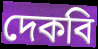
দেকবি